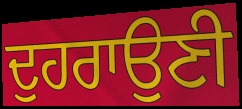
ਦੁਹਰਾਉਣੀ